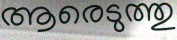
ആരെടുത്തു